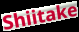
Shiitake